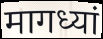
मागध्यां